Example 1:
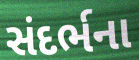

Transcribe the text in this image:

સંદર્ભના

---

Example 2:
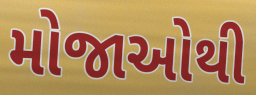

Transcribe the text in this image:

મોજાઓથી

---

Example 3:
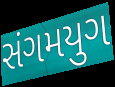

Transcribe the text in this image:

સંગમયુગ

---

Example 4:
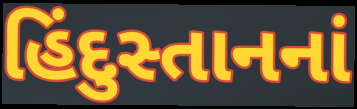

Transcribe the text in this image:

હિંદુસ્તાનનાં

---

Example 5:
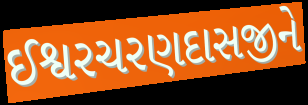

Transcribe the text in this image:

ઈશ્વરચરણદાસજીને